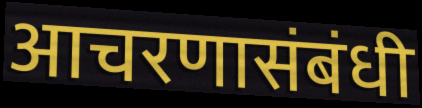
आचरणासंबंधी